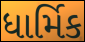
ધાર્મિક